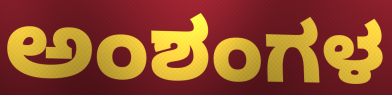
ಅಂಶಂಗಳ